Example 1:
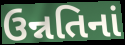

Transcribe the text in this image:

ઉન્નતિનાં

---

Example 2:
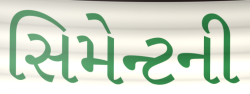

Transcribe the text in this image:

સિમેન્ટની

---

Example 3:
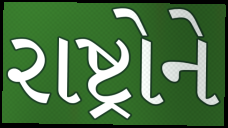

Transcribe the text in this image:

રાષ્ટ્રોને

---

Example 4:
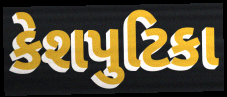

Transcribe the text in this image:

કેશપુટિકા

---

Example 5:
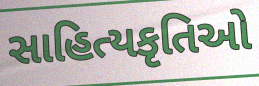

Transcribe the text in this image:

સાહિત્યકૃતિઓ